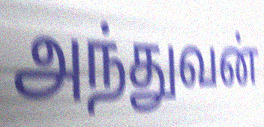
அந்துவன்